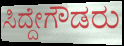
ಸಿದ್ದೇಗೌಡರು